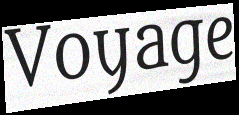
Voyage